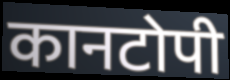
कानटोपी